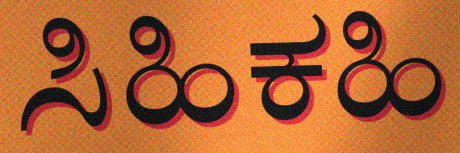
ಸಿಹಿಕಹಿ